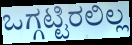
ಒಗ್ಗಟ್ಟಿರಲಿಲ್ಲ